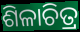
ଶିଳାଚିତ୍ର